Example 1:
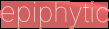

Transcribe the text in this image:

epiphytic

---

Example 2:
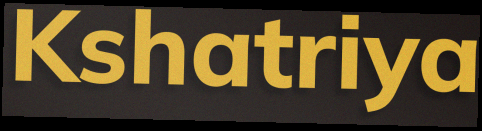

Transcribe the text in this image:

Kshatriya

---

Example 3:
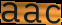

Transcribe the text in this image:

aac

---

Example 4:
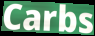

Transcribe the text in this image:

Carbs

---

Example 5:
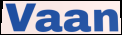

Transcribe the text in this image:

Vaan